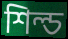
শিল্ড